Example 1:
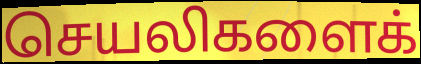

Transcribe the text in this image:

செயலிகளைக்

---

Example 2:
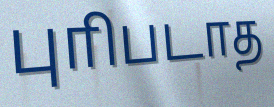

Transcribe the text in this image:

புரிபடாத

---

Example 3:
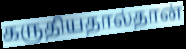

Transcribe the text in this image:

கருதியதால்தான்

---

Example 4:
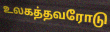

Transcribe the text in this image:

உலகத்தவரோடு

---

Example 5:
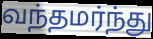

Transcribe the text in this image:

வந்தமர்ந்து